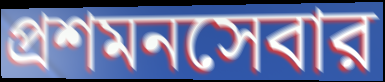
প্রশমনসেবার